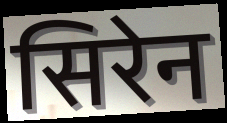
सिरेन